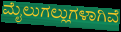
ಮೈಲುಗಲ್ಲುಗಳಾಗಿವೆ